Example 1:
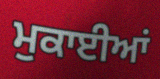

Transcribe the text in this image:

ਮੁਕਾਈਆਂ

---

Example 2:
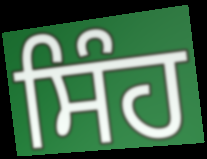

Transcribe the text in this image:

ਸਿੰਹ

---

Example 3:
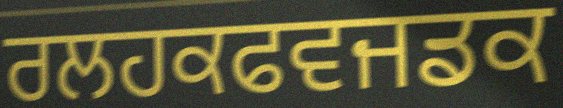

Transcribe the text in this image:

ਰਲਹਕਫਵਜਡਕ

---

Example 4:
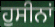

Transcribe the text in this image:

ਹੁਸੀਨਾਂ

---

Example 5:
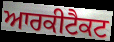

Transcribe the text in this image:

ਆਰਕੀਟੈਕਟ